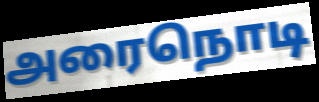
அரைநொடி